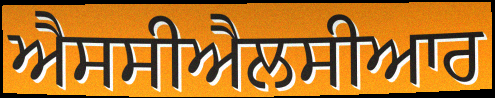
ਐਸਸੀਐਲਸੀਆਰ